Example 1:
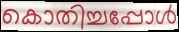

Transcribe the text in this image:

കൊതിച്ചപ്പോൾ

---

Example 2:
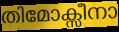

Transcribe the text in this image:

തിമോക്സീനാ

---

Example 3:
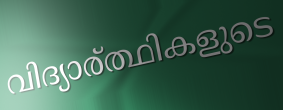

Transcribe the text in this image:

വിദ്യാര്ത്ഥികളുടെ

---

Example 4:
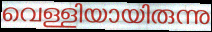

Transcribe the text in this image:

വെള്ളിയായിരുന്നു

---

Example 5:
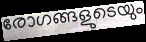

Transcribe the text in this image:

രോഗങ്ങളുടെയും